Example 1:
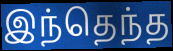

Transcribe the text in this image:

இந்தெந்த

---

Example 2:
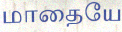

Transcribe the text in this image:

மாதையே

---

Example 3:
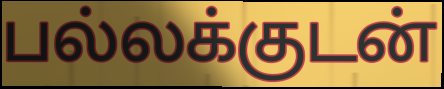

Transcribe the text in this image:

பல்லக்குடன்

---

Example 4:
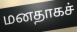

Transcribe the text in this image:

மனதாகச்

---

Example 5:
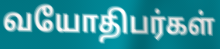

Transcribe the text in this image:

வயோதிபர்கள்